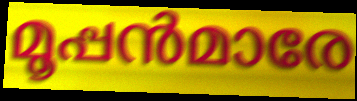
മൂപ്പൻമാരേ